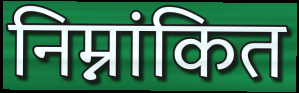
निम्नांकित